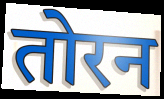
तोरन